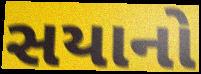
સયાનો